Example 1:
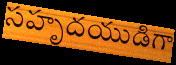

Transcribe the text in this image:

సహృదయుడిగా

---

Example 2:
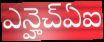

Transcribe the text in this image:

ఎన్హెచ్ఏఐ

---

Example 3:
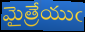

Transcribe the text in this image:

మైత్రేయుఁ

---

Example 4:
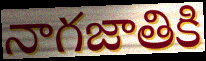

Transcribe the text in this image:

నాగజాతికి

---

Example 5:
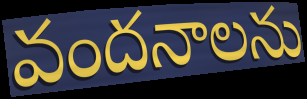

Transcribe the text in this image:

వందనాలను